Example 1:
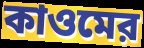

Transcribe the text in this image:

কাওমের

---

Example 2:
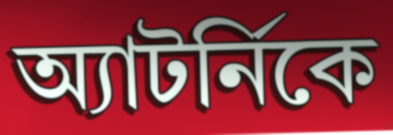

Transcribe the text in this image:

অ্যাটর্নিকে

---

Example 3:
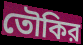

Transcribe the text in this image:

তৌকির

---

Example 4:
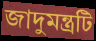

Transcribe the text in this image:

জাদুমন্ত্রটি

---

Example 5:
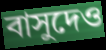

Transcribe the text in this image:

বাসুদেও